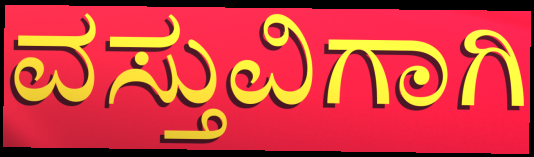
ವಸ್ತುವಿಗಾಗಿ